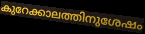
കുറേക്കാലത്തിനുശേഷം